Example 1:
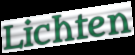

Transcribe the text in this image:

Lichten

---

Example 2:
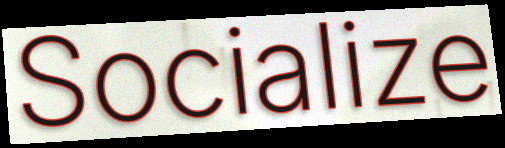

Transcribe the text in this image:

Socialize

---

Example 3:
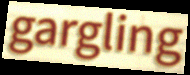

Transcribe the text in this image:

gargling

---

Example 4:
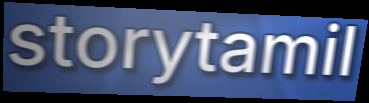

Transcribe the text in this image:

storytamil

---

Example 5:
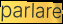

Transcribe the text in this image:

parlare